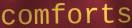
comforts